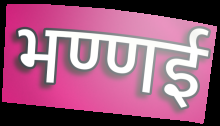
भण्णई